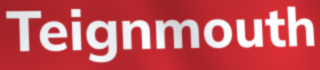
Teignmouth